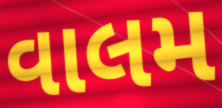
વાલમ